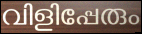
വിളിപ്പേരും